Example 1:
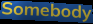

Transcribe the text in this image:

Somebody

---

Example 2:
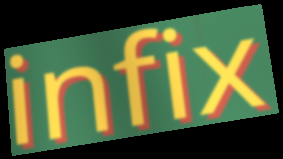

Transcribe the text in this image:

infix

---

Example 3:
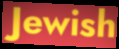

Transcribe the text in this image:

Jewish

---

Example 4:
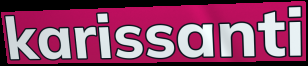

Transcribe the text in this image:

karissanti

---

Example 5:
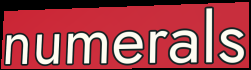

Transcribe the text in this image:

numerals